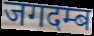
जगदम्ब